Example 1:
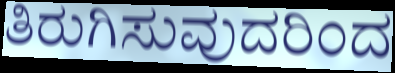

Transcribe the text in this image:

ತಿರುಗಿಸುವುದರಿಂದ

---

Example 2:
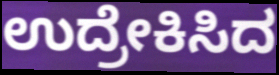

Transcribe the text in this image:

ಉದ್ರೇಕಿಸಿದ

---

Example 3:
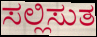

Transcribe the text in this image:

ಸಲ್ಲಿಸುತ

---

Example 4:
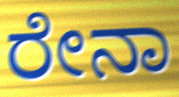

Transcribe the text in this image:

ರೇನಾ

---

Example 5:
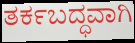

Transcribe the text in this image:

ತರ್ಕಬದ್ಧವಾಗಿ